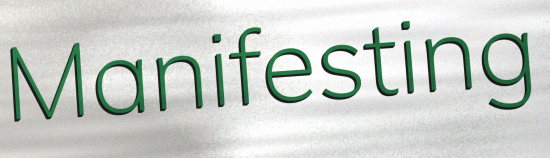
Manifesting